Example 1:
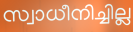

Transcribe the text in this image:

സ്വാധീനിച്ചില്ല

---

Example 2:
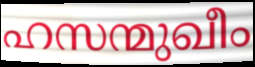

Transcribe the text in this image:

ഹസന്മുഖീം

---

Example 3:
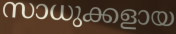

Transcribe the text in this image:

സാധുക്കളായ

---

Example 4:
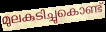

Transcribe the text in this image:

മുലകുടിച്ചുകൊണ്ട്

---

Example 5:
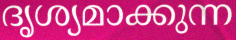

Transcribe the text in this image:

ദൃശ്യമാക്കുന്ന